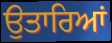
ਉਤਾਰਿਆਂ